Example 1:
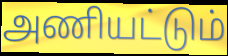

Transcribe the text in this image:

அணியட்டும்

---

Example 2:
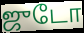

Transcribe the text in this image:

ஜுடோ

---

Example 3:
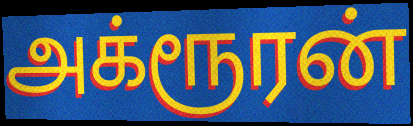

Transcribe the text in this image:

அக்ரூரன்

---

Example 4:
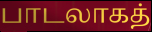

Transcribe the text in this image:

பாடலாகத்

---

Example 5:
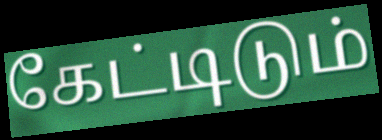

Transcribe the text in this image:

கேட்டிடும்